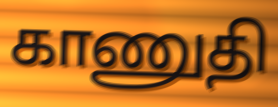
காணுதி